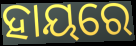
ହାୟରେ